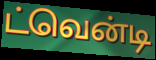
ட்வென்டி